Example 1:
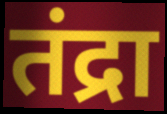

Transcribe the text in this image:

तंद्रा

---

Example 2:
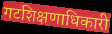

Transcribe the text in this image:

गटशिक्षणाधिकारी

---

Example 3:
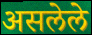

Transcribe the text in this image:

असलेले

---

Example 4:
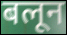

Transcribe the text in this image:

बलून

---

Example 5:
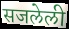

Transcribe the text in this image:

सजलेली